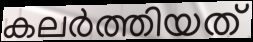
കലർത്തിയത്